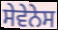
ਸੇਵੇਨੇਸ